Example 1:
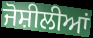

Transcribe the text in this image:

ਜੋਸ਼ੀਲੀਆਂ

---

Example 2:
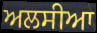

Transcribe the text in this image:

ਅਲਸੀਆ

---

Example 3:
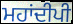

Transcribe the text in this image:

ਮਹਾਂਦੀਪੀ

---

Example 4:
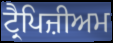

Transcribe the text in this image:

ਟ੍ਰੈਪਿਜ਼ੀਅਮ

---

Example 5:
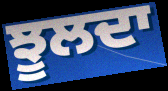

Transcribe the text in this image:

ਝੂਲਦਾ